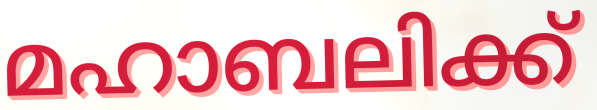
മഹാബലിക്ക്